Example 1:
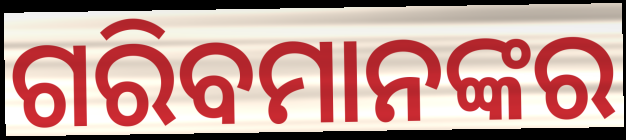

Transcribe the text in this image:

ଗରିବମାନଙ୍କର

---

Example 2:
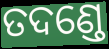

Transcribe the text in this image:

ତଦଣ୍ଡେ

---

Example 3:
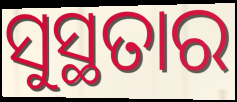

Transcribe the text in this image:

ସୁସ୍ଥତାର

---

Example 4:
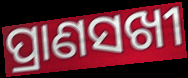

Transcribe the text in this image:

ପ୍ରାଣସଖୀ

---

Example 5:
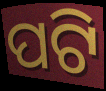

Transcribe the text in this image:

ପଟି